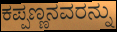
ಕಪ್ಪಣ್ಣನವರನ್ನು